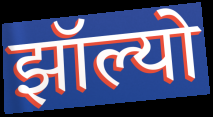
झॉल्यो